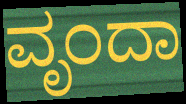
ವೃಂದಾ